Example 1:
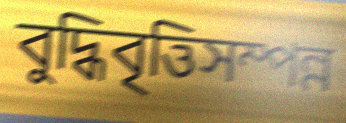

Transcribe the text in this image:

বুদ্ধিবৃত্তিসম্পন্ন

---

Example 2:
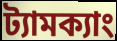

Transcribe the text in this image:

ট্যামক্যাং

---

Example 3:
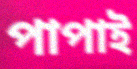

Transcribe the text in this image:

পাপাই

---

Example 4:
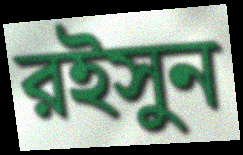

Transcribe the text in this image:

রইসুন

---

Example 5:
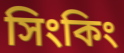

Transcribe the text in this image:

সিংকিং